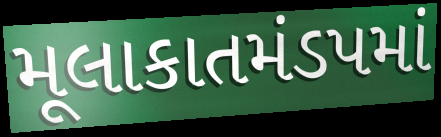
મૂલાકાતમંડપમાં